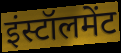
इंस्टॉलमेंट